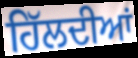
ਹਿੱਲਦੀਆਂ